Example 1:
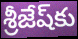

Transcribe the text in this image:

శ్రీజేష్‌కు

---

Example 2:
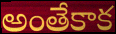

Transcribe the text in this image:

అంతేకాక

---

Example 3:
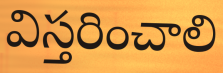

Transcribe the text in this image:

విస్తరించాలి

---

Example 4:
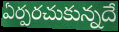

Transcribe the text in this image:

ఏర్పరచుకున్నదే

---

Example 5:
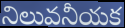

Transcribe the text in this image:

నిలువనీయక